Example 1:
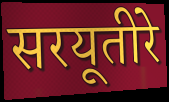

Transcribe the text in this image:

सरयूतीरे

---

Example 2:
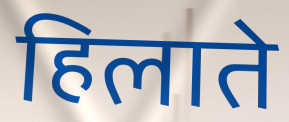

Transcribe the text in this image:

हिलाते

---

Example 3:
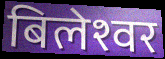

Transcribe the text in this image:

बिलेश्वर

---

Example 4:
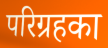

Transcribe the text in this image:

परिग्रहका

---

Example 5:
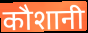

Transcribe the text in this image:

कौशानी